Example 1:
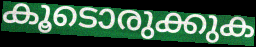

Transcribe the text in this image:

കൂടൊരുക്കുക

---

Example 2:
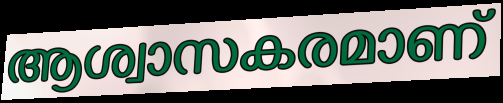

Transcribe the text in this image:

ആശ്വാസകരമാണ്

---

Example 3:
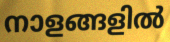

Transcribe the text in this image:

നാളങ്ങളിൽ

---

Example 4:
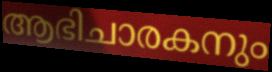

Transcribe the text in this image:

ആഭിചാരകനും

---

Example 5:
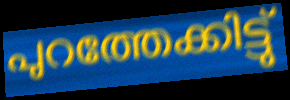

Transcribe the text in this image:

പുറത്തേക്കിട്ടു്